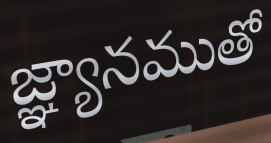
జ్ఞ్యానముతో